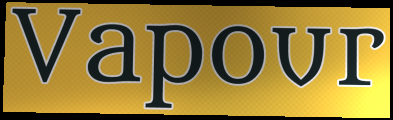
Vapour